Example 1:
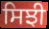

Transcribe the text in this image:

ਸਿਝੀ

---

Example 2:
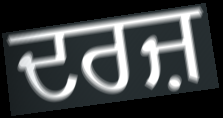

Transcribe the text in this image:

ਦਰਜ਼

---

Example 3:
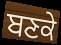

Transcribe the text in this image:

ਬਣਕੇ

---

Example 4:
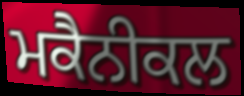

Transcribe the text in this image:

ਮਕੈਨੀਕਲ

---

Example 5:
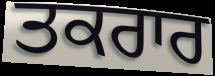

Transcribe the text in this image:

ਤਕਰਾਰ